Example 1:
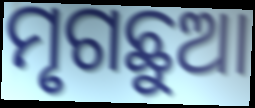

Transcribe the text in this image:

ମୃଗଛୁଆ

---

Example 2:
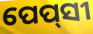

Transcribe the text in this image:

ପେପ୍‌ସୀ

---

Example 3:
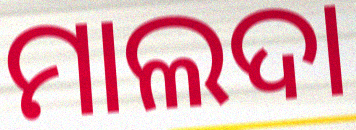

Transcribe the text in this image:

ମାଲଦା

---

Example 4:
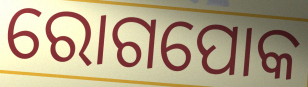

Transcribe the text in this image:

ରୋଗପୋକ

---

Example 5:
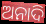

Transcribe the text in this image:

ଅନାଦି